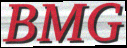
BMG